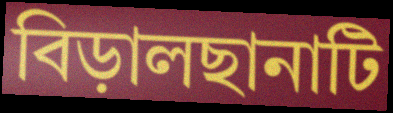
বিড়ালছানাটি